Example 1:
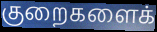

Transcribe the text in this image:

குறைகளைக்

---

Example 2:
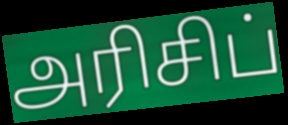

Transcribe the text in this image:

அரிசிப்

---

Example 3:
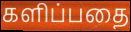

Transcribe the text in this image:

களிப்பதை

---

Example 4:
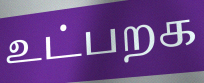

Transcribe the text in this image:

உட்பறக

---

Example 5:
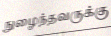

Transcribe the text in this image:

நுழைந்தவருக்கு